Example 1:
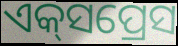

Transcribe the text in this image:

ଏକ୍‌ସପ୍ରେସ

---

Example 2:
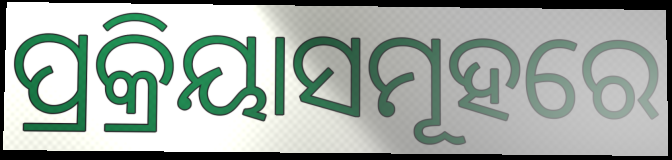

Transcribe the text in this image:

ପ୍ରକ୍ରିୟାସମୂହରେ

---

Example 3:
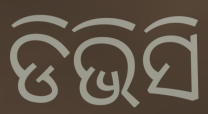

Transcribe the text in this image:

ଡିଭିସି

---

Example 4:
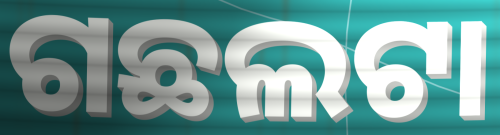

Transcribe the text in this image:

ଗଛଲଟା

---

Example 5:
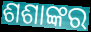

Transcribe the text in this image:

ଶଶାଙ୍କର